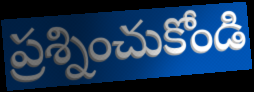
ప్రశ్నించుకోండి